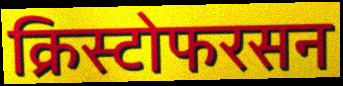
क्रिस्टोफरसन